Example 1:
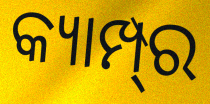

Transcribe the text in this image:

କ୍ୟାମ୍ପ୍‍ର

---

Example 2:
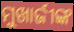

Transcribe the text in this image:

ମୁଖାର୍ଜୀଙ୍କ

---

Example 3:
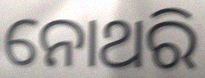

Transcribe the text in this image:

ନୋଥରି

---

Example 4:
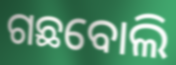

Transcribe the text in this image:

ଗଛବୋଲି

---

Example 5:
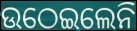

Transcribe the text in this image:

ଉଠେଇଲେନି